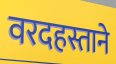
वरदहस्ताने